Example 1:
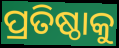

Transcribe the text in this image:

ପ୍ରତିଷ୍ଠାକୁ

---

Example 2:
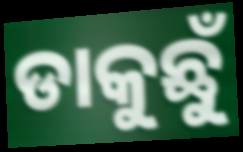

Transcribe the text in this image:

ଡାକୁଛୁଁ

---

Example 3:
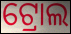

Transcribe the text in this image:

ଟ୍ରୋଲ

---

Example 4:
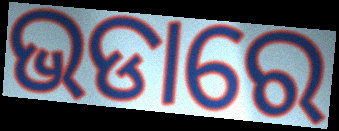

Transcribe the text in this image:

ଭଡାରେ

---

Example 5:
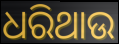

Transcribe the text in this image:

ଧରିଥାଉ